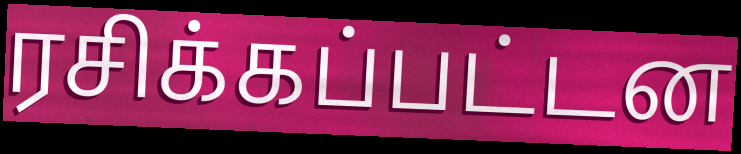
ரசிக்கப்பட்டன